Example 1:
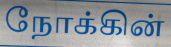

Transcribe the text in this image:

நோக்கின்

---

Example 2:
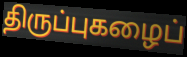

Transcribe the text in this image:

திருப்புகழைப்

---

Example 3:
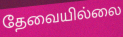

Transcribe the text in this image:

தேவையில்லை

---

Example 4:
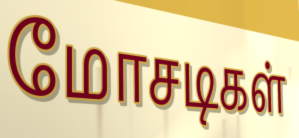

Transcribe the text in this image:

மோசடிகள்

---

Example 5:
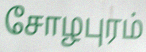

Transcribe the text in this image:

சோழபுரம்